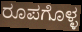
ರೂಪಗೊಳ್ಳ